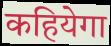
कहियेगा